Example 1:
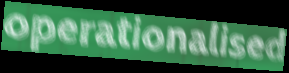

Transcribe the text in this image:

operationalised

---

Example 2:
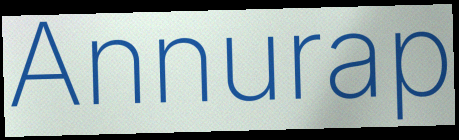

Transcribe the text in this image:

Annurap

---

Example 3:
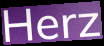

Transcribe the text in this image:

Herz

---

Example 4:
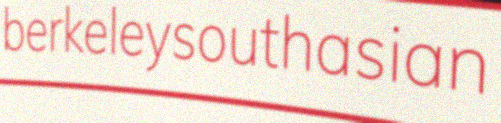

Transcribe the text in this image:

berkeleysouthasian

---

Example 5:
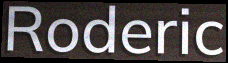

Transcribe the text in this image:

Roderic